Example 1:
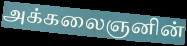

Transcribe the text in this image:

அக்கலைஞனின்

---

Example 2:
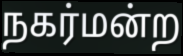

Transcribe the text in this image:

நகர்மன்ற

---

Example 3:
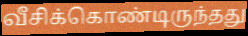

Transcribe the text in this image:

வீசிக்கொண்டிருந்தது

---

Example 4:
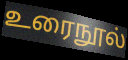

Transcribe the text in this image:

உரைநூல்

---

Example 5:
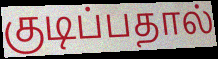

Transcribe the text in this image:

குடிப்பதால்